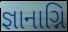
જ્ઞાનાગ્નિ